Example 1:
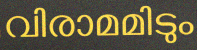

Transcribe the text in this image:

വിരാമമിടും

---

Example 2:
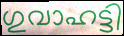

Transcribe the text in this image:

ഗുവാഹട്ടി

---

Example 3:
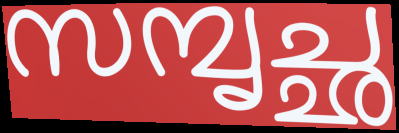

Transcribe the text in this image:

സമ്പൃച്ഛ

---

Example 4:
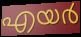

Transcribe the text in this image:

എയർ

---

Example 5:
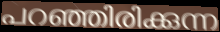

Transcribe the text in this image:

പറഞ്ഞിരിക്കുന്ന